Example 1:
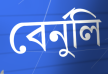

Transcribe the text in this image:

বেৰ্নুলি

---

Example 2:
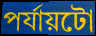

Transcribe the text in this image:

পৰ্যায়টো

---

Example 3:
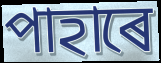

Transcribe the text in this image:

পাহাৰে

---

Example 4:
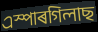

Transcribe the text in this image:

এস্পাৰগিলাছ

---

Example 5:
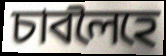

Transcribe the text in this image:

চাবলৈহে